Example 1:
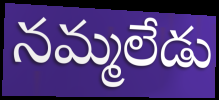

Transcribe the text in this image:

నమ్మలేడు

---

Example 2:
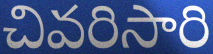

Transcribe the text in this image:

చివరిసారి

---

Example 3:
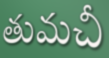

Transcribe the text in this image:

తుమచీ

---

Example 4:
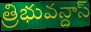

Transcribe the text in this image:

త్రిభువన్దాస్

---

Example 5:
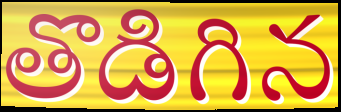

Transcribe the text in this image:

తొడిగిన